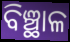
ବିଞ୍ଛାଳ